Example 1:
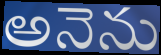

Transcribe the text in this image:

అనెను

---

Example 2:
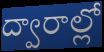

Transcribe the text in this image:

ద్వారాల్లో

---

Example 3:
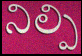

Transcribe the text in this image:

నిల్పి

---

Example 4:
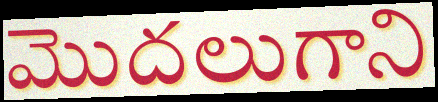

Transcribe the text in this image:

మొదలుగాని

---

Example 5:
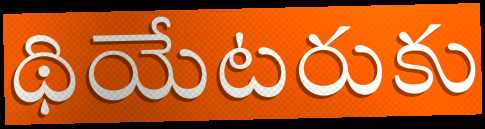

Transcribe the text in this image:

థియేటరుకు